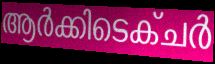
ആർക്കിടെക്ചർ